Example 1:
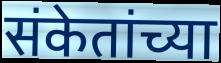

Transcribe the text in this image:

संकेतांच्या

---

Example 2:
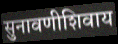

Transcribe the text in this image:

सुनावणीशिवाय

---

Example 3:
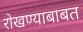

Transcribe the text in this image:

रोखण्याबाबत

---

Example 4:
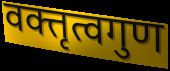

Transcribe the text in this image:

वक्तृत्वगुण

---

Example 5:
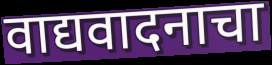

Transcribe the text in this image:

वाद्यवादनाचा